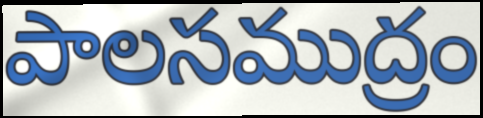
పాలసముద్రం